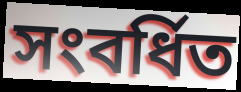
সংবর্ধিত